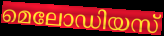
മെലോഡിയസ്